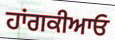
ਹਾਂਗਕੀਆਓ